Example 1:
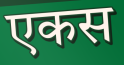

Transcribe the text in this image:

एकस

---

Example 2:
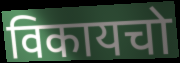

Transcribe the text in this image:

विकायचो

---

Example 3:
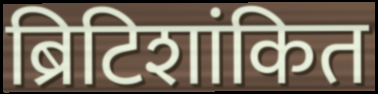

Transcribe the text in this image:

ब्रिटिशांकित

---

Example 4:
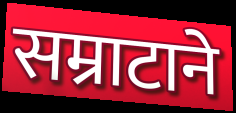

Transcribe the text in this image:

सम्राटाने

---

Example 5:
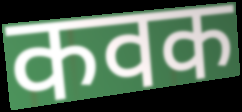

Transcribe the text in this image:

कवक